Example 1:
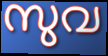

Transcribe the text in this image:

സുവ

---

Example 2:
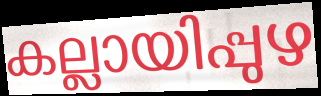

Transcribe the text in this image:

കല്ലായിപ്പുഴ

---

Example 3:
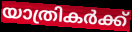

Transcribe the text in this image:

യാത്രികർക്ക്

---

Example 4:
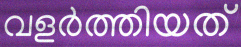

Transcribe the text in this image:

വളർത്തിയത്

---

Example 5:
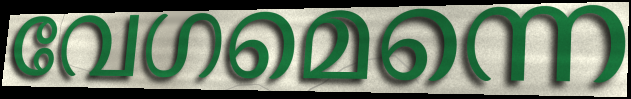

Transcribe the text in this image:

വേഗമെന്നെ